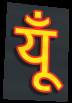
यूँ